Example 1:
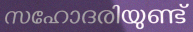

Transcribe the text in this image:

സഹോദരിയുണ്ട്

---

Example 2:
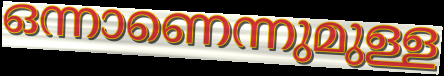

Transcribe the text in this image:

ഒന്നാണെന്നുമുള്ള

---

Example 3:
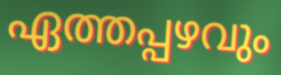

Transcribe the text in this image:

ഏത്തപ്പഴവും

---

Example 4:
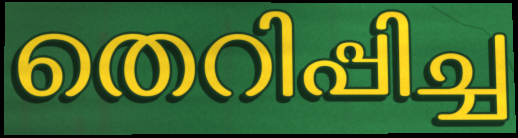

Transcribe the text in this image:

തെറിപ്പിച്ച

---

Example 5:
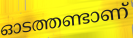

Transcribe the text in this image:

ഓടത്തണ്ടാണ്